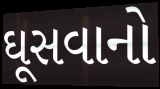
ઘૂસવાનો